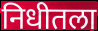
निधीतला